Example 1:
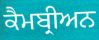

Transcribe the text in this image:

ਕੈਮਬ੍ਰੀਅਨ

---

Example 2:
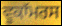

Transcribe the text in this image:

ਵੂਕਾੱਮਰਸ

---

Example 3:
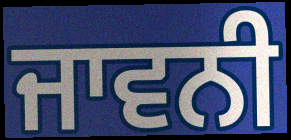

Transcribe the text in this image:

ਜਾਵਨੀ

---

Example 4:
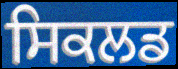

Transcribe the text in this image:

ਸਿਕਲਡ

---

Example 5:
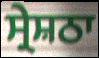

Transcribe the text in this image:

ਸ੍ਰੇਸ਼ਠਾ